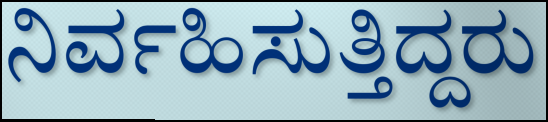
ನಿರ್ವಹಿಸುತ್ತಿದ್ದರು